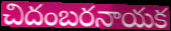
చిదంబరనాయక